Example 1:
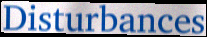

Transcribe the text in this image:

Disturbances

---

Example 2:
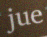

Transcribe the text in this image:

jue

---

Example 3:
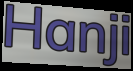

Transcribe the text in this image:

Hanji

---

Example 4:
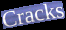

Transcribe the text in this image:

Cracks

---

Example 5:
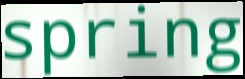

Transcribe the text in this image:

spring